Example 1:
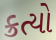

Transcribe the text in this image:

ક્રત્યો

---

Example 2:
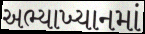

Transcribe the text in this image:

અભ્યાખ્યાનમાં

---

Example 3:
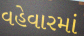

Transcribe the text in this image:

વહેવારમાં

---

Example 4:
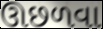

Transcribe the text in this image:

ઊછળવા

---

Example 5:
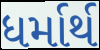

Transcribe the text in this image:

ધર્માર્થ